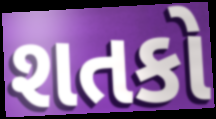
શતકો